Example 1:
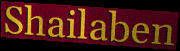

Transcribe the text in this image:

Shailaben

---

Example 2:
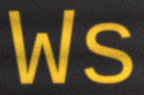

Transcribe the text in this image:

Ws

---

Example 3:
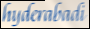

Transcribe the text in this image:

hyderabadi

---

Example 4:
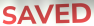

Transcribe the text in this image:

SAVED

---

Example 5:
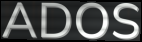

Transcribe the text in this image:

ADOS